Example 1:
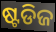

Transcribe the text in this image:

ଷ୍ଟଡିଜ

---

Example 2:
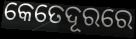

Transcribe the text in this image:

କେତେଦୂରରେ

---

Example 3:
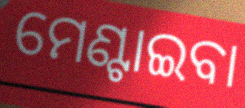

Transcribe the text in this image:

ମେଣ୍ଟାଇବା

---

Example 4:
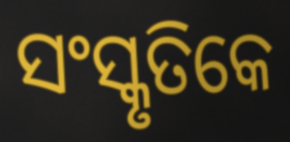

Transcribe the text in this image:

ସଂସ୍କୃତିକେ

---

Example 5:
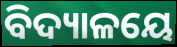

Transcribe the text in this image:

ବିଦ୍ୟାଳୟେ